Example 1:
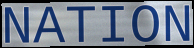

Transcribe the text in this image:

NATION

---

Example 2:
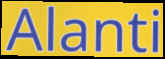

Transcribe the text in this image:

Alanti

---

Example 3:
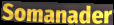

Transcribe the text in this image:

Somanader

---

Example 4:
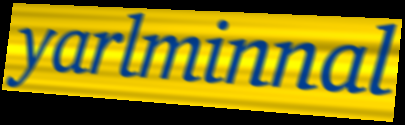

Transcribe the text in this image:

yarlminnal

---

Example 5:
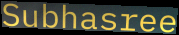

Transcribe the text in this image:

Subhasree